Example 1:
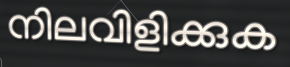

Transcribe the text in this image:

നിലവിളിക്കുക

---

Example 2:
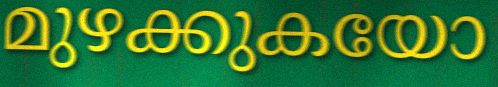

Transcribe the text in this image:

മുഴക്കുകയോ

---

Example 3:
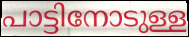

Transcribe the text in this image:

പാട്ടിനോടുള്ള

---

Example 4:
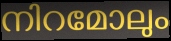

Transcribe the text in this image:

നിറമോലും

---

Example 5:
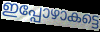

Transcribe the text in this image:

ഇപ്പോഴാകട്ടെ